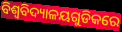
ବିଶ୍ଵବିଦ୍ୟାଳୟଗୁଡିକରେ